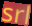
srl